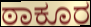
ಠಾಕೂರ